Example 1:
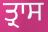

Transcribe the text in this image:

ਤ੍ਰਾਸ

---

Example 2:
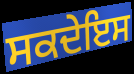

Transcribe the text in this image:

ਸਕਦੇਇਸ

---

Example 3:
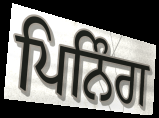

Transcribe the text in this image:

ਪਿਨਿੰਗ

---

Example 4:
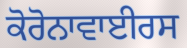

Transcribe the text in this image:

ਕੋਰੋਨਾਵਾਈਰਸ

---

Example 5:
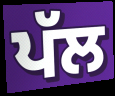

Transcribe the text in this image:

ਪੱਲ